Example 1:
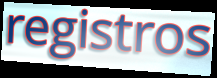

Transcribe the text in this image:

registros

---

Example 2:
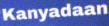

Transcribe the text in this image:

Kanyadaan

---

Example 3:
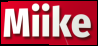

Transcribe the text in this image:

Miike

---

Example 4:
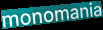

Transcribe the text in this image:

monomania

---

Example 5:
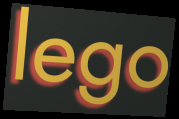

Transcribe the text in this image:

lego